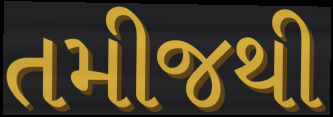
તમીજથી